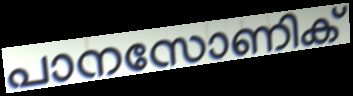
പാനസോണിക്